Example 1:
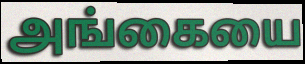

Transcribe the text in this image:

அங்கையை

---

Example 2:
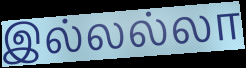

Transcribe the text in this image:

இல்லல்லா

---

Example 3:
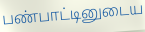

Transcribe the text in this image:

பண்பாட்டினுடைய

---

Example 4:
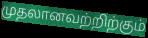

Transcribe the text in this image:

முதலானவற்றிற்கும்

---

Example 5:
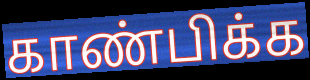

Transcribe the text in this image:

காண்பிக்க